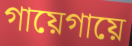
গায়েগায়ে